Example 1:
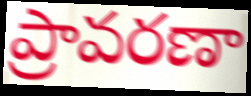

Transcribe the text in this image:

ప్రావరణా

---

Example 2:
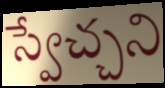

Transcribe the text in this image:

స్వేచ్చని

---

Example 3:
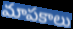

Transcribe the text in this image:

మాపకాలు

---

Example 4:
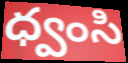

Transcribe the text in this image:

ధ్వంసి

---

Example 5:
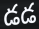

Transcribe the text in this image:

డడ